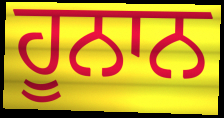
ਹੂਨਾਨ